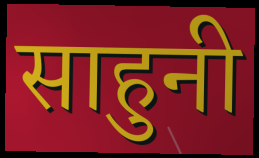
साहुनी